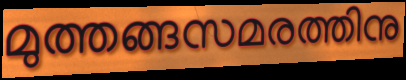
മുത്തങ്ങസമരത്തിനു